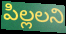
పిల్లలని